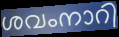
ശവംനാറി